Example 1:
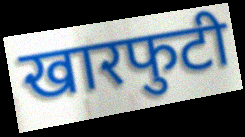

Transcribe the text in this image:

खारफुटी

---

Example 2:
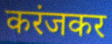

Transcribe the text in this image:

करंजकर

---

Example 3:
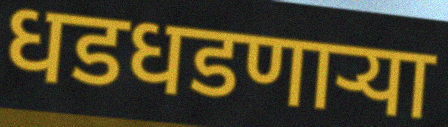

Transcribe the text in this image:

धडधडणाऱ्या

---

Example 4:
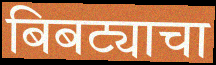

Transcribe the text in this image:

बिबट्याचा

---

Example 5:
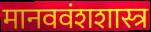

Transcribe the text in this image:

मानववंशशास्त्र